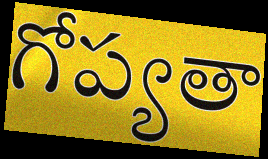
గోప్యతా